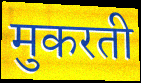
मुकरती